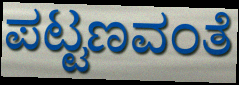
ಪಟ್ಟಣವಂತೆ